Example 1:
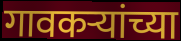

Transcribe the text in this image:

गावकऱ्यांच्या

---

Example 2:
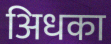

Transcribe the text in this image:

अिधका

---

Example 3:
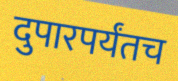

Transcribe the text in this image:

दुपारपर्यंतच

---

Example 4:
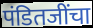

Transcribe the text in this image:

पंडितजींचा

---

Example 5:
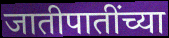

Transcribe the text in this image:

जातीपातींच्या